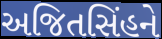
અજિતસિંહને